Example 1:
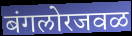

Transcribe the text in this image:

बंगलोरजवळ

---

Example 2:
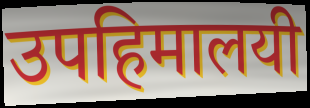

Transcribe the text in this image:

उपहिमालयी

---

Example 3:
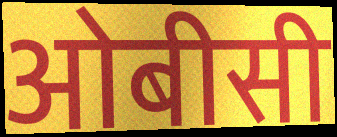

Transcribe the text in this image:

ओबीसी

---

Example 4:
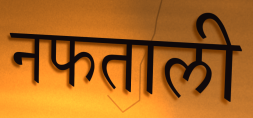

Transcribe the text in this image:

नफताली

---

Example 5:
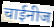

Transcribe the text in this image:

चाईनीज